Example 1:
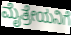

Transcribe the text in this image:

ಮೈತ್ರೇಯನಿಗೆ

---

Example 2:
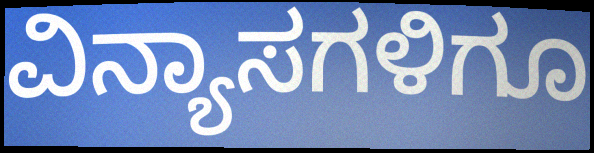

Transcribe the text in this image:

ವಿನ್ಯಾಸಗಳಿಗೂ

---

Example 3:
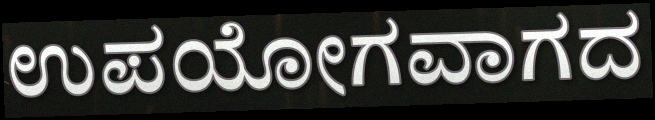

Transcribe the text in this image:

ಉಪಯೋಗವಾಗದ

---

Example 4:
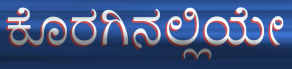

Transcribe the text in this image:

ಕೊರಗಿನಲ್ಲಿಯೇ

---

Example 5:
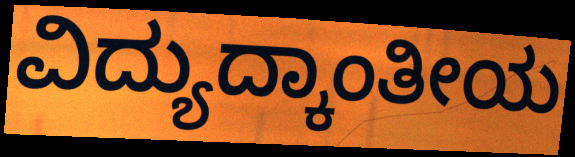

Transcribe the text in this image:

ವಿದ್ಯುದ್ಕಾಂತೀಯ